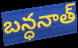
బన్ధనాత్